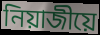
নিয়াজীয়ে